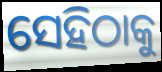
ସେହିଠାକୁ